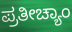
ಪ್ರತೀಚ್ಯಾಂ